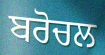
ਬਰੋਚਲ